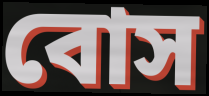
বোস